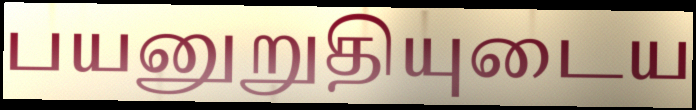
பயனுறுதியுடைய